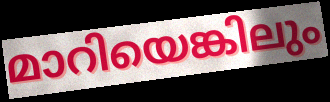
മാറിയെങ്കിലും